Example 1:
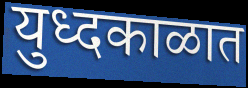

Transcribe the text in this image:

युध्दकाळात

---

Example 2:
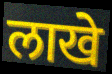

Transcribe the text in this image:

लाखे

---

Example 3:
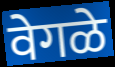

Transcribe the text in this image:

वेगळे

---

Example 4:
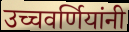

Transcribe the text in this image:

उच्चवर्णियांनी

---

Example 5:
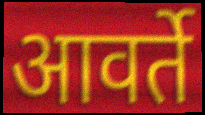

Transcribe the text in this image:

आवर्ते